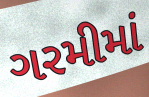
ગરમીમાં